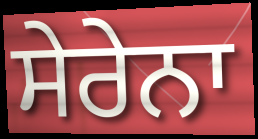
ਸੇਰੇਨਾ